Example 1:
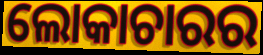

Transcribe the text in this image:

ଲୋକାଚାରର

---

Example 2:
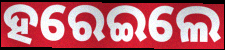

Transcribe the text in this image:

ହରେଇଲେ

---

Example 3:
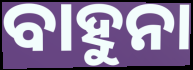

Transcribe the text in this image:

ବାହୁନା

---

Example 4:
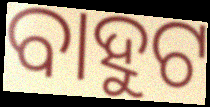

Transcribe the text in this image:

ବାହୁଟ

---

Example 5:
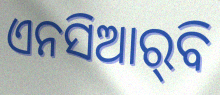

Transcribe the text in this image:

ଏନସିଆର୍‌ବି